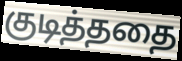
குடித்ததை